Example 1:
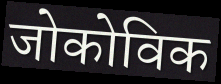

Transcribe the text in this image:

जोकोविक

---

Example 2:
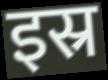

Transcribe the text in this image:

इस्र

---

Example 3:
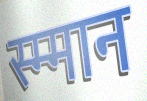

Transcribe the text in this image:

स्म्मान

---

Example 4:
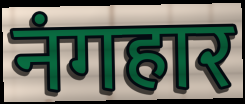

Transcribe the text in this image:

नंगहार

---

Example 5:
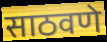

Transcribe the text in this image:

साठवणे